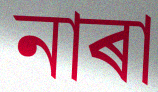
নাৰা